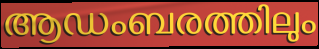
ആഡംബരത്തിലും